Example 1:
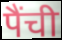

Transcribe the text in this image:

पैंची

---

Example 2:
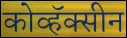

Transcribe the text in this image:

कोव्हॅक्सीन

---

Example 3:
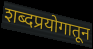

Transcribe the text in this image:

शब्दप्रयोगातून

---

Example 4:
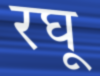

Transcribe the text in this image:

रघू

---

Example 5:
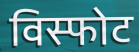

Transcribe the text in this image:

विस्फोट